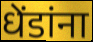
धेंडांना